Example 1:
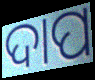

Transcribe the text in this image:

ଦାପ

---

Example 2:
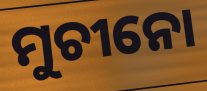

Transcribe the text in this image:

ମୁଚୀନୋ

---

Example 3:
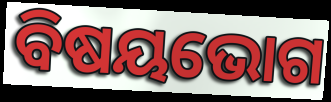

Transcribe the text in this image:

ବିଷୟଭୋଗ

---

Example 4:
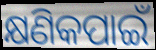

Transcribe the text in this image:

କ୍ଷଣିକପାଇଁ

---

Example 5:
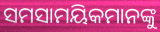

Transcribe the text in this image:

ସମସାମୟିକମାନଙ୍କୁ